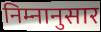
निम्‍नानुसार